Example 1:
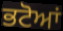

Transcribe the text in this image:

ਭਟੋਆਂ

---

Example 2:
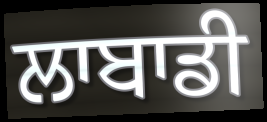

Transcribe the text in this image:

ਲਾਬਾਡੀ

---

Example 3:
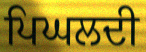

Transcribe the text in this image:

ਪਿਘਲਦੀ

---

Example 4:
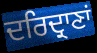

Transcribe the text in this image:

ਦਰਿਦ੍ਰਾਣਾਂ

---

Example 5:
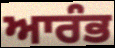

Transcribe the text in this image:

ਆਰੰਭ